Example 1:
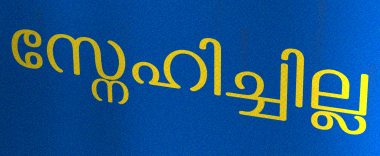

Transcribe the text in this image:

സ്നേഹിച്ചില്ല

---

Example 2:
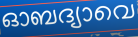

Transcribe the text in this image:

ഓബദ്യാവെ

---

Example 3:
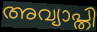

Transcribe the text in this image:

അവ്യാപ്തി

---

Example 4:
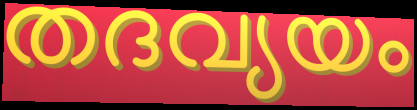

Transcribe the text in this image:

തദവ്യയം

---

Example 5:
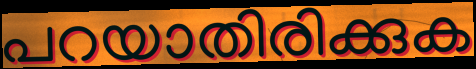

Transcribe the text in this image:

പറയാതിരിക്കുക